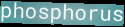
phosphorus